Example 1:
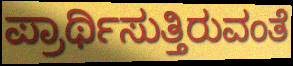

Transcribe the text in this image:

ಪ್ರಾರ್ಥಿಸುತ್ತಿರುವಂತೆ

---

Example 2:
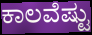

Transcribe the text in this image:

ಕಾಲವೆಷ್ಟು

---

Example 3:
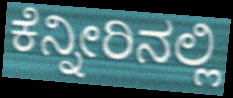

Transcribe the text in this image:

ಕೆನ್ನೀರಿನಲ್ಲಿ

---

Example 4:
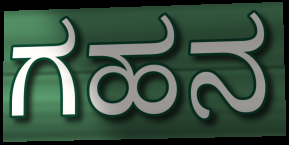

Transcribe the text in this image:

ಗಹನ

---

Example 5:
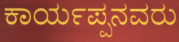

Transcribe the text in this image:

ಕಾರ್ಯಪ್ಪನವರು